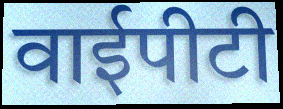
वाईपीटी